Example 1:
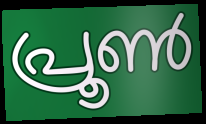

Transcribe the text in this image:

പ്രൂൺ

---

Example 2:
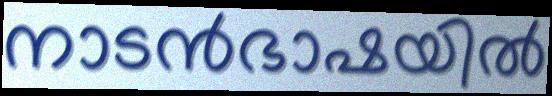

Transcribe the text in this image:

നാടൻഭാഷയിൽ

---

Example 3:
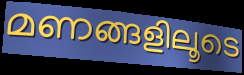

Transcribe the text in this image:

മണങ്ങളിലൂടെ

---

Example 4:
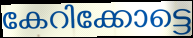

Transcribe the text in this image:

കേറിക്കോട്ടെ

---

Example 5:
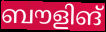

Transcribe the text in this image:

ബൗളിങ്